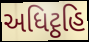
અધિટ્ઠહિ